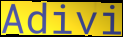
Adivi